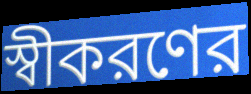
স্বীকরণের